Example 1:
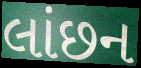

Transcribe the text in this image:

લાંછન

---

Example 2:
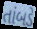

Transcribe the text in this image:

તાંબડે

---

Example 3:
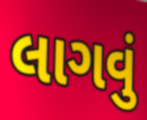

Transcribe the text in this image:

લાગવું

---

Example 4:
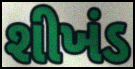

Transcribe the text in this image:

શીખંડ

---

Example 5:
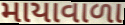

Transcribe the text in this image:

માયાવાળા